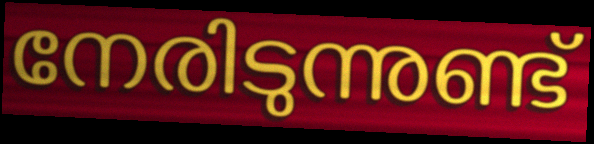
നേരിടുന്നുണ്ട്